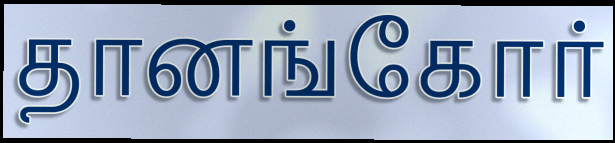
தானங்கோர்